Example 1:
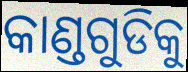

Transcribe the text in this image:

କାଣ୍ଡଗୁଡିକୁ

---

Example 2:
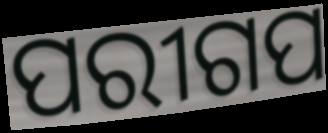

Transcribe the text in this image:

ପରୀଗପ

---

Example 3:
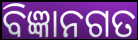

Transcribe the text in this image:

ବିଜ୍ଞାନଗତ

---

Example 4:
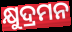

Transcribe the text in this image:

କ୍ଷୁଦ୍ରମନ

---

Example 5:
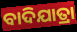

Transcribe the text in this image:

ବାଦିଯାତ୍ରା